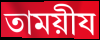
তাময়ীয